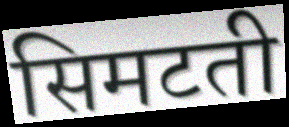
सिमटती